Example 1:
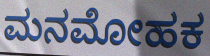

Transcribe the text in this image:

ಮನಮೋಹಕ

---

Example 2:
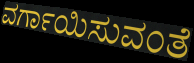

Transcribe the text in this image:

ವರ್ಗಾಯಿಸುವಂತೆ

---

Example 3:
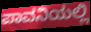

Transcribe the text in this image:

ಪಾವನಿಯಲ್ಲಿ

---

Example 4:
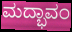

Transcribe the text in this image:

ಮದ್ಭಾವಂ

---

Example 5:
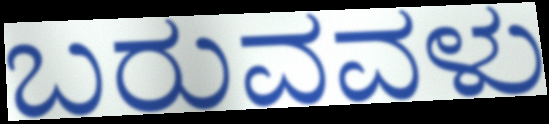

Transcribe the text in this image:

ಬರುವವಳು